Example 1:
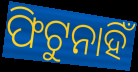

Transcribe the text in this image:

ଫିଟୁନାହିଁ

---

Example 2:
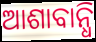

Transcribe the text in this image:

ଆଶାବାନ୍ଧି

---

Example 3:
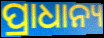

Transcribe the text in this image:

ପ୍ରାଧାନ୍ୟ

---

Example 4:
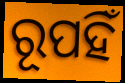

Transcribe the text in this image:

ରୂପହିଁ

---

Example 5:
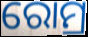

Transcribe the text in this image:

ରୋମ୍ର